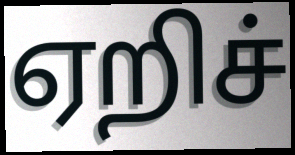
ஏறிச்